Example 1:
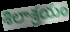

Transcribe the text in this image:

శిలాశ్రయం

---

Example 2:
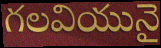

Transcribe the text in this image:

గలవియునై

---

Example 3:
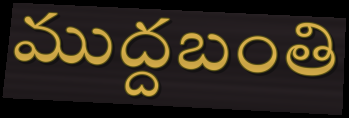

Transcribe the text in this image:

ముద్దబంతి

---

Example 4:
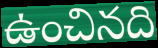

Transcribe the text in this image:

ఉంచినది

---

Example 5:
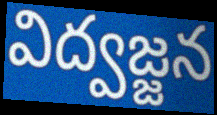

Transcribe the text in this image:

విద్వజ్జన